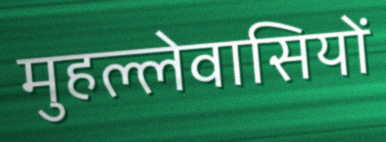
मुहल्लेवासियों